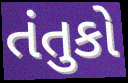
તંતુકો